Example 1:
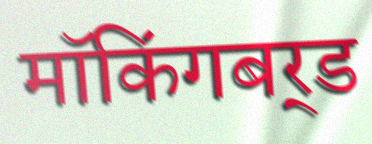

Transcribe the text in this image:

मॉकिंगबर्ड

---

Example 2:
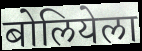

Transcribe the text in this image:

बोलियेला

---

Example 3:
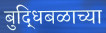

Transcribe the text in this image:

बुद्धिबळाच्या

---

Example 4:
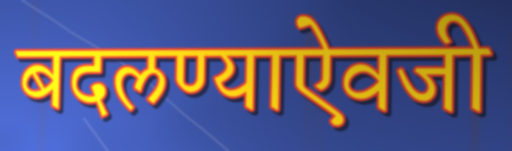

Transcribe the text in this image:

बदलण्याऐवजी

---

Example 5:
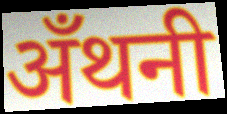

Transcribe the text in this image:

अँथनी